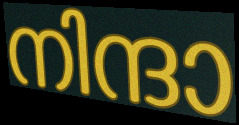
നിന്ദാ